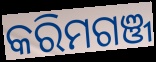
କରିମଗଞ୍ଜ